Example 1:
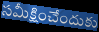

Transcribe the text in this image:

సమీక్షించేందుకు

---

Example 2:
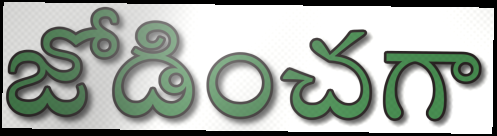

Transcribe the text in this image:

జోడించగా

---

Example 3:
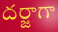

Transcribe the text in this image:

దర్జాగా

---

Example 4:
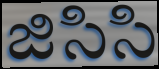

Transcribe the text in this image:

జిసిసి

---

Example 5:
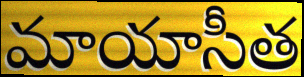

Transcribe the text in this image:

మాయాసీత